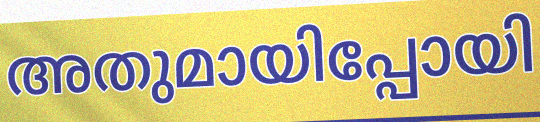
അതുമായിപ്പോയി